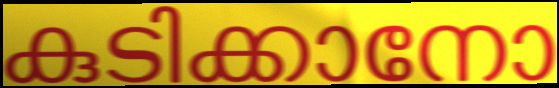
കുടിക്കാനോ